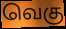
வெகு